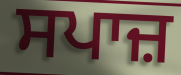
ਸਪਾਜ਼